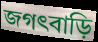
জগৎবাড়ি